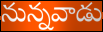
నున్నవాడు